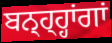
ਬਨ੍ਹ੍ਹ੍ਹਾਂਗਾਂ